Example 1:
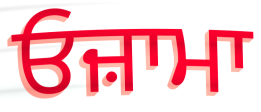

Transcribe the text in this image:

ਓਜ਼ਾਮਾ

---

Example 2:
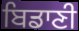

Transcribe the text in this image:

ਬਿਡਾਣੀ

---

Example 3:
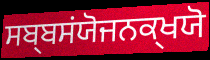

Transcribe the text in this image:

ਸਬ੍ਬਸਂਯੋਜਨਕ੍ਖਯੋ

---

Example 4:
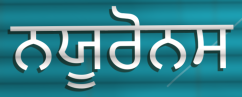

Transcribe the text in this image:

ਨਯੂਰੋਨਸ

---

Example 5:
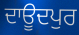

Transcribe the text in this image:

ਦਾਊਦਪੁਰ